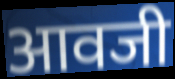
आवजी